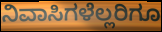
ನಿವಾಸಿಗಳೆಲ್ಲರಿಗೂ